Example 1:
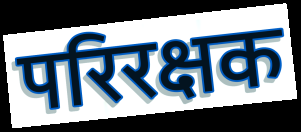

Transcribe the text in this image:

परिरक्षक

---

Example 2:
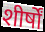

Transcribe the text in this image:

शीर्षों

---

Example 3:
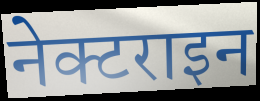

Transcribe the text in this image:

नेक्टराइन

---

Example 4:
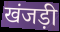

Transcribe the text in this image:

खंजड़ी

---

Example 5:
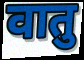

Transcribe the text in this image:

वातु